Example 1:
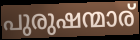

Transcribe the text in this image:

പുരുഷന്മാര്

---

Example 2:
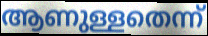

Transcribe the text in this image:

ആണുള്ളതെന്ന്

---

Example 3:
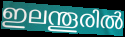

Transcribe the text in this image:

ഇലന്തൂരിൽ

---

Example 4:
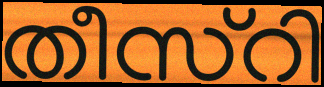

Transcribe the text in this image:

തീസ്റി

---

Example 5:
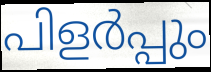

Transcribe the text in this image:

പിളർപ്പും